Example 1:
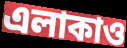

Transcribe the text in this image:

এলাকাও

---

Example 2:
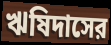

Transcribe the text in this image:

ঋষিদাসের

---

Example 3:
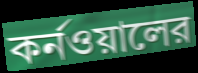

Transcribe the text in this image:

কর্নওয়ালের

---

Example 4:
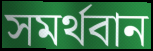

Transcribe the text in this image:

সমর্থবান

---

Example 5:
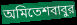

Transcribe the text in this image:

অমিতেশবাবুর